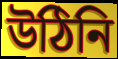
উঠিনি